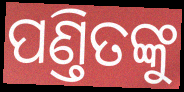
ପଣ୍ତିତଙ୍କୁ